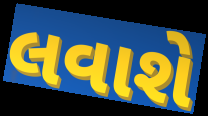
લવાશે